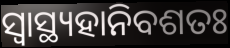
ସ୍ୱାସ୍ଥ୍ୟହାନିବଶତଃ